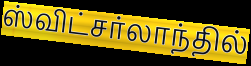
ஸ்விட்சர்லாந்தில்